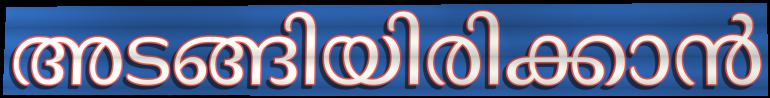
അടങ്ങിയിരിക്കാൻ